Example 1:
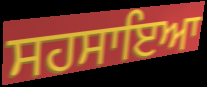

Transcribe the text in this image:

ਸਹਸਾਇਆ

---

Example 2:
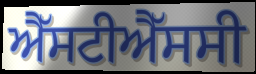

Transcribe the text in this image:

ਐੱਸਟੀਐੱਸਸੀ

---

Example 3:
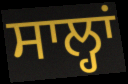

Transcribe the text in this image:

ਸਾਲ੍ਹਾਂ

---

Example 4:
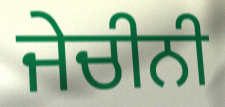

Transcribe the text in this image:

ਜੇਚੀਨੀ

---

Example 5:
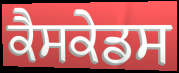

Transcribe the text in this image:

ਕੈਸਕੇਡਸ